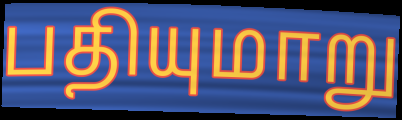
பதியுமாறு